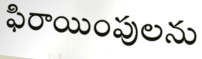
ఫిరాయింపులను